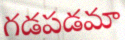
గడపడమా